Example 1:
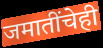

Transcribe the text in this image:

जमातींचेही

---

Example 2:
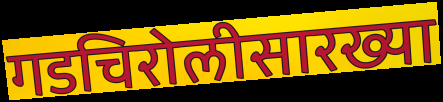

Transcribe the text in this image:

गडचिरोलीसारख्या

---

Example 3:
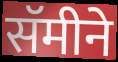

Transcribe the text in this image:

सॅमीने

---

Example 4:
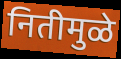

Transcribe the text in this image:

नितीमुळे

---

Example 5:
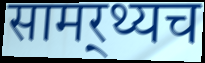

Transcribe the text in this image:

सामर्थ्यच